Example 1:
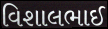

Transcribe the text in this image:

વિશાલભાઈ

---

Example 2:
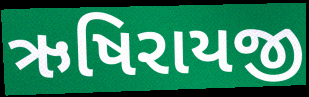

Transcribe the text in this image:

ઋષિરાયજી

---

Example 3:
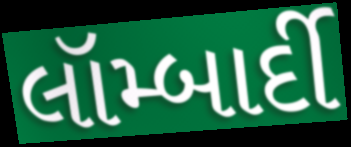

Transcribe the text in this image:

લૉમ્બાર્દી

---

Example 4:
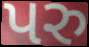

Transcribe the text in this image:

પરુ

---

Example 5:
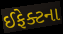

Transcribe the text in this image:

ઈફેક્ટના